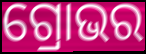
ଗ୍ରୋଭର